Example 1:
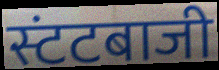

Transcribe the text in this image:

स्टंटबाजी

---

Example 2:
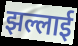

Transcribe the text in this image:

झल्लाई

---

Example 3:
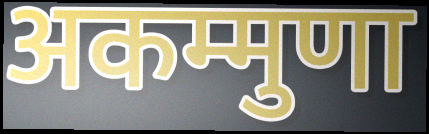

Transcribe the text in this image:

अकम्मुणा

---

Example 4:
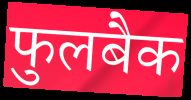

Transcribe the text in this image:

फुलबैक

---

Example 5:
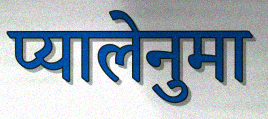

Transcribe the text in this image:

प्यालेनुमा